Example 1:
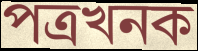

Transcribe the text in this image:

পত্ৰখনক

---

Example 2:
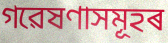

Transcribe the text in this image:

গৱেষণাসমূহৰ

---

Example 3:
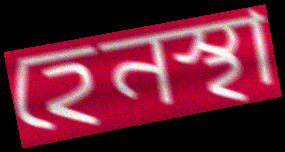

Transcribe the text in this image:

হেনস্থা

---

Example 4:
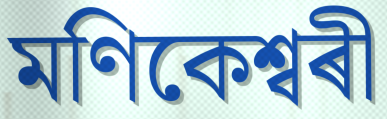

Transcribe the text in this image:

মণিকেশ্বৰী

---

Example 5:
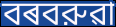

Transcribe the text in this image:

বৰবৰুৱা